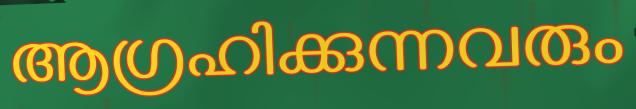
ആഗ്രഹിക്കുന്നവരും